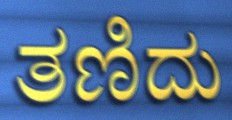
ತಣಿದು